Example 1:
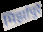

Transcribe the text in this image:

मिर्झापुरे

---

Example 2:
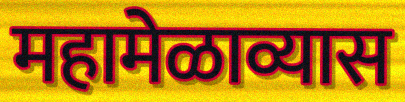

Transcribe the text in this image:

महामेळाव्यास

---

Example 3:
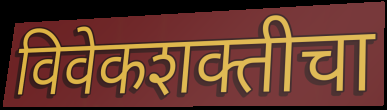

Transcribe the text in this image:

विवेकशक्तीचा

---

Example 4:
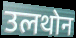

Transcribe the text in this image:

उलथोन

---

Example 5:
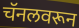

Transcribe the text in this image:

चॅनलवरून